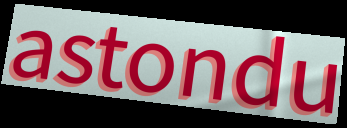
astondu